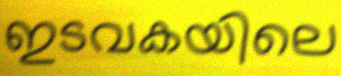
ഇടവകയിലെ